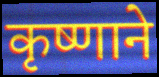
कृष्णाने